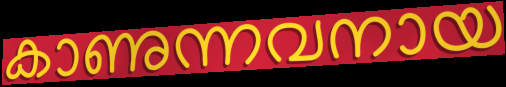
കാണുന്നവനായ